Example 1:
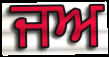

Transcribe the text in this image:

ਜਅ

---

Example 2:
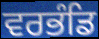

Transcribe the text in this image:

ਵਰਭੰਡਿ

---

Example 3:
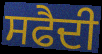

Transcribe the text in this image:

ਸਫੈਦੀ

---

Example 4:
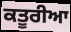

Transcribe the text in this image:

ਕਤੂਰੀਆ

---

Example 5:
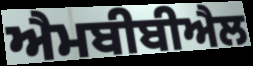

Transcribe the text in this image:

ਐਮਬੀਬੀਐਲ